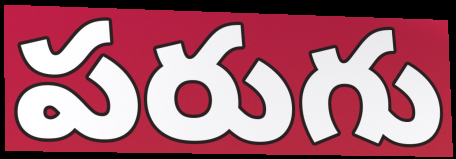
పరుగు